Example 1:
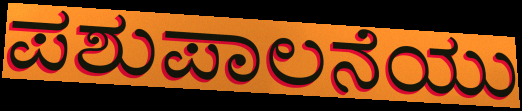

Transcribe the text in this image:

ಪಶುಪಾಲನೆಯು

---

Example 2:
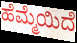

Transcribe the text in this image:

ಹೆಮ್ಮೆಯಿದೆ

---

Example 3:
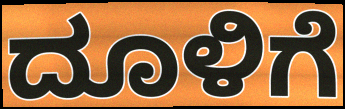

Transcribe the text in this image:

ದೂಳಿಗೆ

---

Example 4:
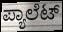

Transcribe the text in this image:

ಪ್ಯಾಲೆಟ್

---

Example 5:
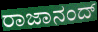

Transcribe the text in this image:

ರಾಜಾನಂದ್